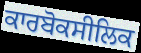
ਕਾਰਬੋਕਸੀਲਿਕ